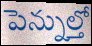
పెన్నుల్తో